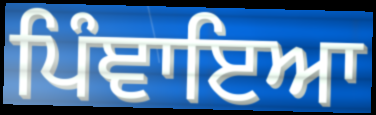
ਪਿੰਞਾਇਆ